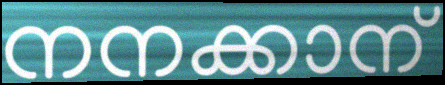
നനക്കാന്